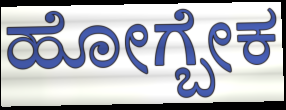
ಹೋಗ್ಬೇಕ